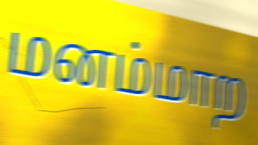
மனம்மாற